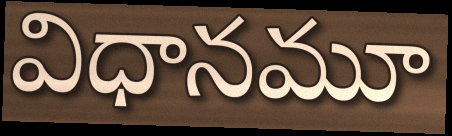
విధానమూ